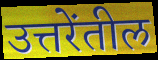
उत्तरेंतील